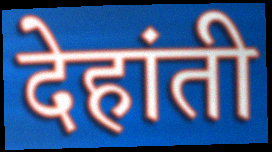
देहांती